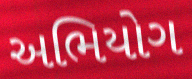
અભિયોગ